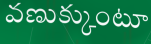
వణుక్కుంటూ